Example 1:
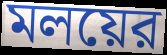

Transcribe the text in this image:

মলয়ের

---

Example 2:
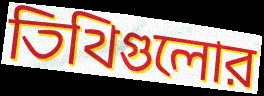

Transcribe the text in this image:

তিথিগুলোর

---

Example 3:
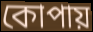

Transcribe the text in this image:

কোপায়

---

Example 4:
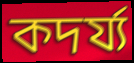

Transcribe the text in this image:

কদর্য্য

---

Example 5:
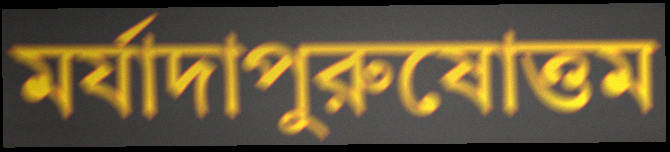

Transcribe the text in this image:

মর্যাদাপুরুষোত্তম